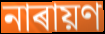
নাৰায়ণ